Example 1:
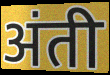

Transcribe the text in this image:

अंती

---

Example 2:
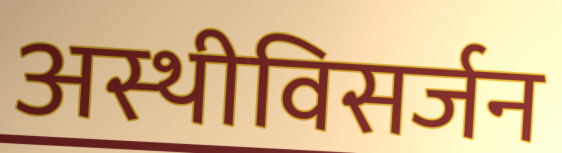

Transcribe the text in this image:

अस्थीविसर्जन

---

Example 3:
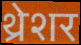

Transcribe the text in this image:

थ्रेशर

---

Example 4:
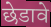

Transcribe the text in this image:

छेडावे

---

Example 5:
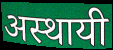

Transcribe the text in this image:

अस्थायी